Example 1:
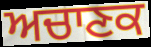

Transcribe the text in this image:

ਅਚਾਣਕ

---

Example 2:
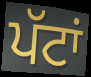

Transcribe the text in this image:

ਪੱਟਾਂ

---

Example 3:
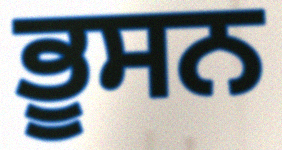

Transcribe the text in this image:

ਭੂਸਨ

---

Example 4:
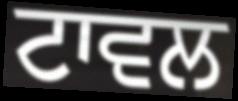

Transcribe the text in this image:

ਟਾਵਲ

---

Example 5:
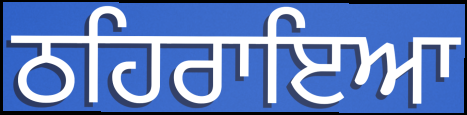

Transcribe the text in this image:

ਠਹਿਰਾਇਆ